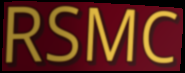
RSMC